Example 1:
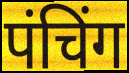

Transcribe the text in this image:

पंचिंग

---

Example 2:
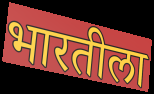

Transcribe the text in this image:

भारतीला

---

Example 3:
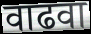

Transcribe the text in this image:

वाढवा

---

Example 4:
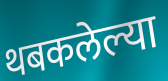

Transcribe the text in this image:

थबकलेल्या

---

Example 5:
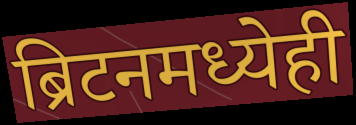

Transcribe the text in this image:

ब्रिटनमध्येही